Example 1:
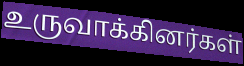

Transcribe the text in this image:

உருவாக்கினர்கள்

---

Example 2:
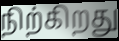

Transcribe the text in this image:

நிற்கிறது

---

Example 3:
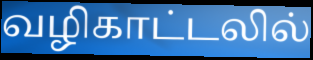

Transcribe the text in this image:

வழிகாட்டலில்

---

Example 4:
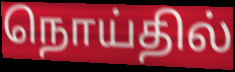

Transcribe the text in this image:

நொய்தில்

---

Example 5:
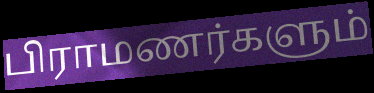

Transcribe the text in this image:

பிராமணர்களும்